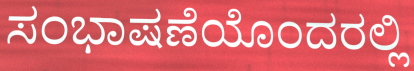
ಸಂಭಾಷಣೆಯೊಂದರಲ್ಲಿ